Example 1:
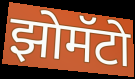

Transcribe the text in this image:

झोमॅटो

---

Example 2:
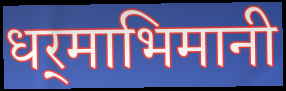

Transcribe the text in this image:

धर्माभिमानी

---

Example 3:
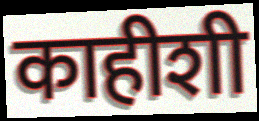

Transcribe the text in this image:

काहीशी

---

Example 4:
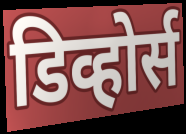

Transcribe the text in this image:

डिव्होर्स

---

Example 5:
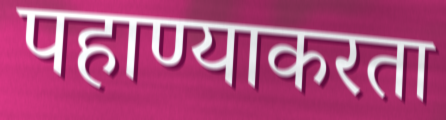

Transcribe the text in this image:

पहाण्याकरता